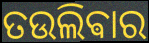
ତଉଲିଵାର